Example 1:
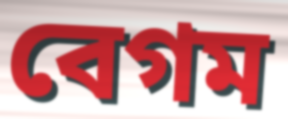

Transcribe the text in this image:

বেগম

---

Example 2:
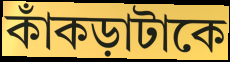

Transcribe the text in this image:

কাঁকড়াটাকে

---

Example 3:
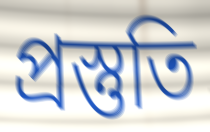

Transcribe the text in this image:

প্রস্তুতি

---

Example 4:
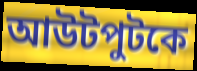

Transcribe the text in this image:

আউটপুটকে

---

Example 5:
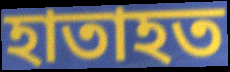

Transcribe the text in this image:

হাতাহত